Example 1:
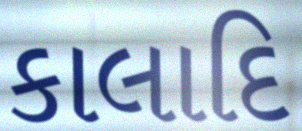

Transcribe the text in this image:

કાલાદિ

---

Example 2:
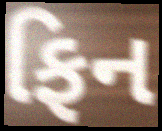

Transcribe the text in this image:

ફિન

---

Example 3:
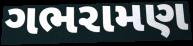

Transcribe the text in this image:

ગભરામણ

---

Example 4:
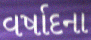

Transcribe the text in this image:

વર્ષાદના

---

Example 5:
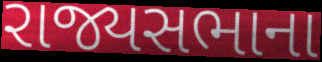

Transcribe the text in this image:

રાજ્યસભાના